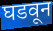
घडवून